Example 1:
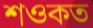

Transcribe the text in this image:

শওকত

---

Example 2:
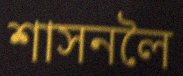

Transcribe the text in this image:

শাসনলৈ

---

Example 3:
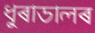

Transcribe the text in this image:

ধুৰাডালৰ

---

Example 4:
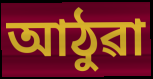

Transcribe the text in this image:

আঠুৱা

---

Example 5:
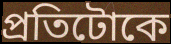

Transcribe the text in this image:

প্ৰতিটোকে